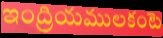
ఇంద్రియములకంటె